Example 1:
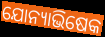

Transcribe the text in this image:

ଯୋନ୍ୟାଭିଷେକ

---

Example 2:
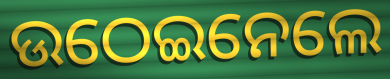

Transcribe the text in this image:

ଉଠେଇନେଲେ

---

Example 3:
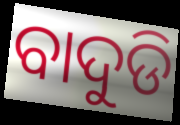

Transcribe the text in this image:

ବାଦୁଡି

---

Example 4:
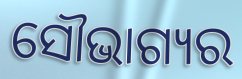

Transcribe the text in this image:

ସୌଭାଗ୍ୟର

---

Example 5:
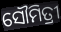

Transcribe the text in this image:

ସୌମିତ୍ରୀ